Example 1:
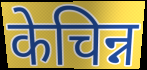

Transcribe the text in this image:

केचिन्न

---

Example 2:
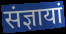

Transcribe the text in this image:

संज्ञायां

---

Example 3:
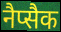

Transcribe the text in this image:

नैप्सैक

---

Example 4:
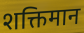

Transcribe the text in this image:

शक्तिमान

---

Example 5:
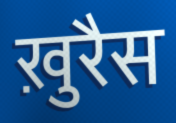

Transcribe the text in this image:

ख़ुरैस